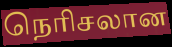
நெரிசலான